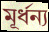
মূৰ্ধন্য